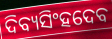
ଦିବ୍ୟସିଂହଦେବ